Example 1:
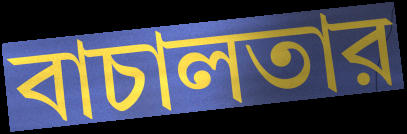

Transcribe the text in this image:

বাচালতার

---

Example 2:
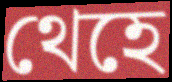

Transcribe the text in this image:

থেহে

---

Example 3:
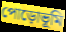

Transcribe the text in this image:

পোড়োভূমি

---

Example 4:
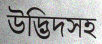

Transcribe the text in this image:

উদ্ভিদসহ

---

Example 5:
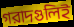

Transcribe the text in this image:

গরাদগুলিই